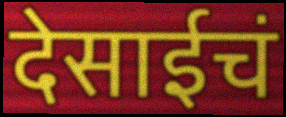
देसाईचं